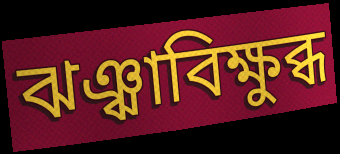
ঝঞ্ঝাবিক্ষুব্ধ